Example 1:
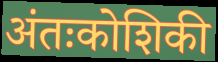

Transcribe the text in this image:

अंतःकोशिकी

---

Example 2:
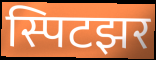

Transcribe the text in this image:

स्पिटझर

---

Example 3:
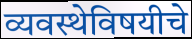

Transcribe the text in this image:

व्यवस्थेविषयीचे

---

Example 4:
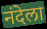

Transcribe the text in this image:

नंदेला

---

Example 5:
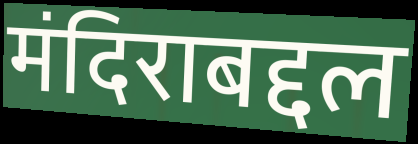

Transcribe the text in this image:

मंदिराबद्दल